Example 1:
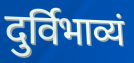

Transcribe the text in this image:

दुर्विभाव्यं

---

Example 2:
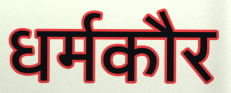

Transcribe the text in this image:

धर्मकौर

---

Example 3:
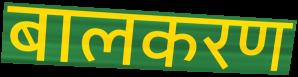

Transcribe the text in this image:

बालकरण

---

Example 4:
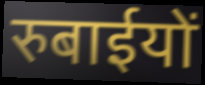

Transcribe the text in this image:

रुबाईयों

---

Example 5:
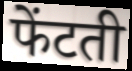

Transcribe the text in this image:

फेंटती